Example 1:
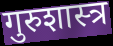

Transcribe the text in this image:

गुरुशास्त्र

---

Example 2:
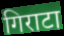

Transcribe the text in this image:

गिराटा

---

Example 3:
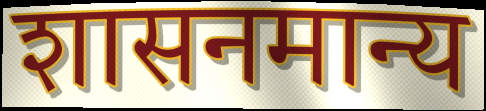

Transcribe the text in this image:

शासनमान्य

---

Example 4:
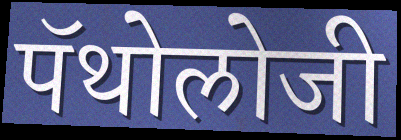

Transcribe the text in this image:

पॅथोलोजी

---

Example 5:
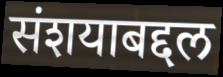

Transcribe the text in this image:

संशयाबद्दल